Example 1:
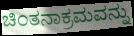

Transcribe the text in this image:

ಚಿಂತನಾಕ್ರಮವನ್ನು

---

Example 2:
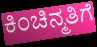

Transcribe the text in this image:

ಕಿಂಚಿನ್ಮತಿಗೆ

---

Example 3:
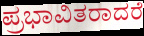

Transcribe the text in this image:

ಪ್ರಭಾವಿತರಾದರೆ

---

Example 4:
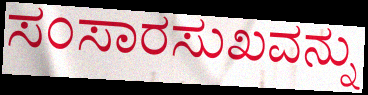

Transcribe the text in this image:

ಸಂಸಾರಸುಖವನ್ನು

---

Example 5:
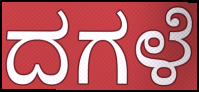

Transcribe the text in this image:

ದಗಳೆ